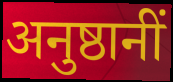
अनुष्ठानीं